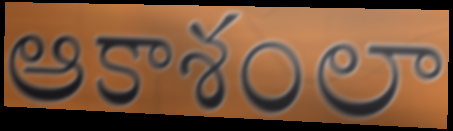
ఆకాశంలా